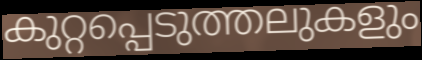
കുറ്റപ്പെടുത്തലുകളും